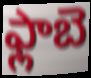
ఫ్లాబె